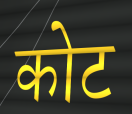
कोट